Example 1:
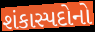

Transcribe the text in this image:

શંકાસ્પદોનો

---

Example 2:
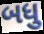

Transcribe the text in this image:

બધુ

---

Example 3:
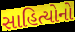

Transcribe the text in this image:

સાહિત્યોનો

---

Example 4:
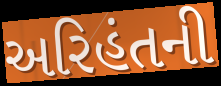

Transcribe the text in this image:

અરિહંતની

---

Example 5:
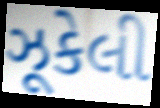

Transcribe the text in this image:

ઝૂકેલી